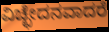
ವಿಚ್ಛೇದನವಾದರೆ